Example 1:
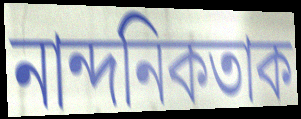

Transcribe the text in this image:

নান্দনিকতাক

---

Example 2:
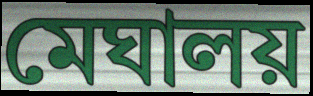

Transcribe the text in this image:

মেঘালয়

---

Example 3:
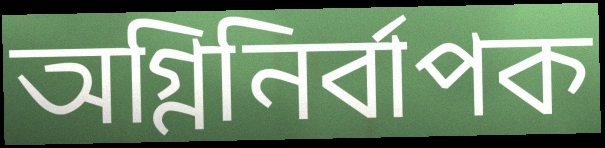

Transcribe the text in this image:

অগ্নিনিৰ্বাপক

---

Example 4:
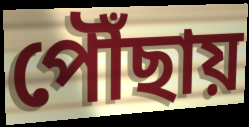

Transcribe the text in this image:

পৌঁছায়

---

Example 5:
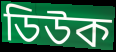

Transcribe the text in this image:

ডিউক